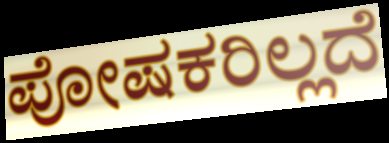
ಪೋಷಕರಿಲ್ಲದೆ